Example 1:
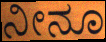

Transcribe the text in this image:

ನೀನೂ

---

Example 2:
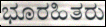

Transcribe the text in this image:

ಭೂರಹಿತರು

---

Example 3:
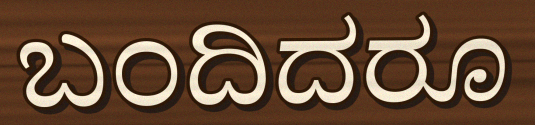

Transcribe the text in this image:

ಬಂದಿದರೂ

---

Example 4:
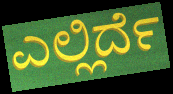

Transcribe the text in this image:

ಎಲ್ಲಿರ್ದೆ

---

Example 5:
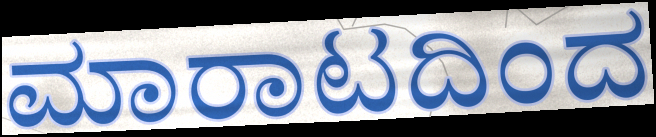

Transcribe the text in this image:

ಮಾರಾಟದಿಂದ